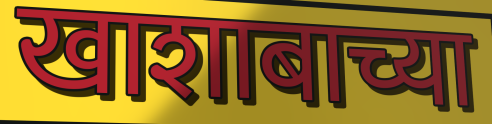
खाशाबाच्या